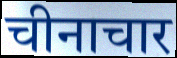
चीनाचार